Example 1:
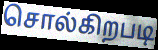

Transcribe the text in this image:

சொல்கிறபடி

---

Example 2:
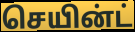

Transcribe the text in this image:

செயின்ட்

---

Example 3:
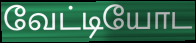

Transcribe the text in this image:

வேட்டியோட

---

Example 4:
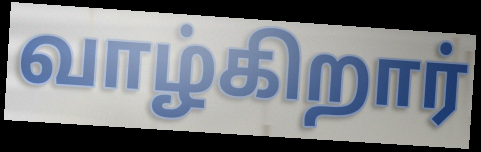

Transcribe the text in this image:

வாழ்கிறார்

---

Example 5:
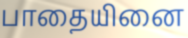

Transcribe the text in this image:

பாதையினை